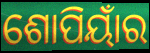
ଶୋପିୟାଁର